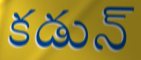
కడున్